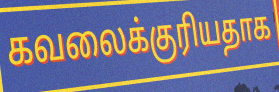
கவலைக்குரியதாக